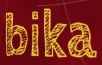
bika